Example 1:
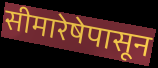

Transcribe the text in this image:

सीमारेषेपासून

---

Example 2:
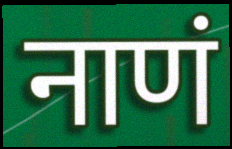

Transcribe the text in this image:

नाणं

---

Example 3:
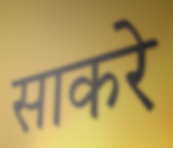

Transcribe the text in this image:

साकरे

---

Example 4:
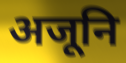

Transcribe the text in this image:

अजूनि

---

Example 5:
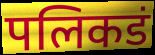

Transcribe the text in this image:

पलिकडं